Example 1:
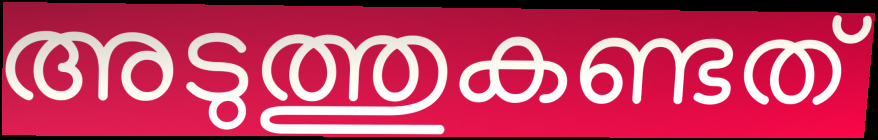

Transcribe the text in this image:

അടുത്തുകണ്ടത്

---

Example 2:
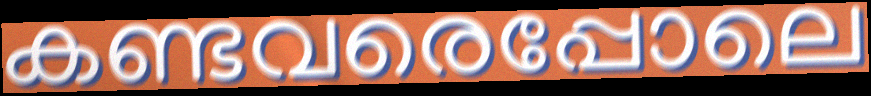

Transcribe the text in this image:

കണ്ടവരെപ്പോലെ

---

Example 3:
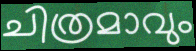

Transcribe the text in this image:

ചിത്രമാവും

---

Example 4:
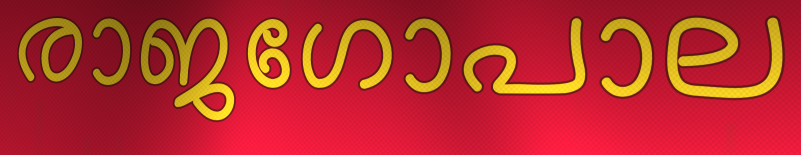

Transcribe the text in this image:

രാജഗോപാല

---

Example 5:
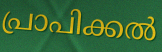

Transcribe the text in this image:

പ്രാപിക്കൽ